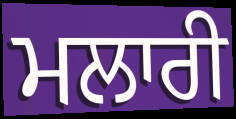
ਮਲਾਰੀ